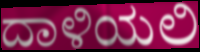
ದಾಳಿಯಲಿ